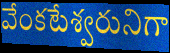
వేంకటేశ్వరునిగా